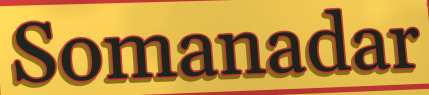
Somanadar